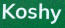
Koshy